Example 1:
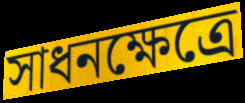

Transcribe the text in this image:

সাধনক্ষেত্রে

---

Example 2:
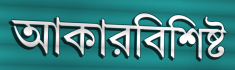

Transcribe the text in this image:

আকারবিশিষ্ট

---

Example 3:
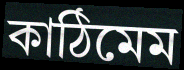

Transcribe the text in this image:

কাঠিমেম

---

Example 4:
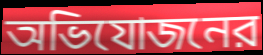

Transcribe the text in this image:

অভিযোজনের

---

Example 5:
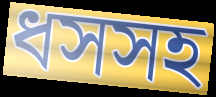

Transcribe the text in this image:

ধসসহ